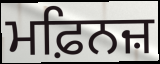
ਮਫ਼ਿਨਜ਼